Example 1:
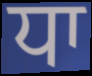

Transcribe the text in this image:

ਧਾ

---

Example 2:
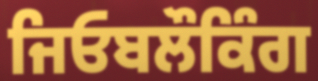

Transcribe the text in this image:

ਜਿਓਬਲੌਕਿੰਗ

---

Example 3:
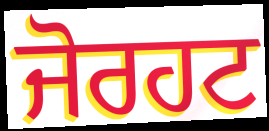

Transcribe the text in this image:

ਜੋਰਹਟ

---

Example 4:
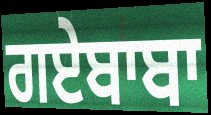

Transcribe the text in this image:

ਗਏਬਾਬਾ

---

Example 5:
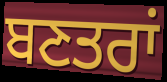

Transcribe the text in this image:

ਬਣਤਰਾਂ